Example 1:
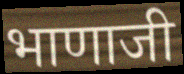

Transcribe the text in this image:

भाणाजी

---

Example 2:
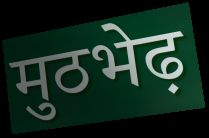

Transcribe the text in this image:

मुठभेढ़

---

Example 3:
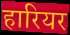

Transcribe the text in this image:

हारियर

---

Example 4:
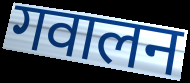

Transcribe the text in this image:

गवालन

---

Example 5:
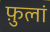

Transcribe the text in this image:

फ़ुलां